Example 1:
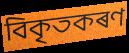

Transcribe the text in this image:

বিকৃতকৰণ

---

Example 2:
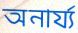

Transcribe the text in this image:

অনাৰ্য্য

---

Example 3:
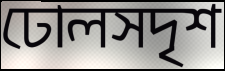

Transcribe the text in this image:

ঢোলসদৃশ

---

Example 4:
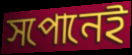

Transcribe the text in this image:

সপোনেই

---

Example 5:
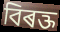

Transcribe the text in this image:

বিৰক্ত